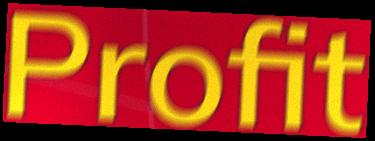
Profit